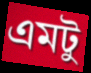
এমটু